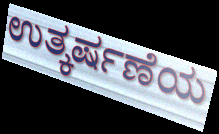
ಉತ್ಕರ್ಷಣೆಯ